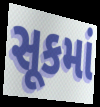
સૂકમાં